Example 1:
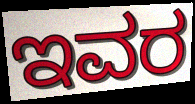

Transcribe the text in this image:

ಇವರ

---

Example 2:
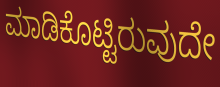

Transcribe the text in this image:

ಮಾಡಿಕೊಟ್ಟಿರುವುದೇ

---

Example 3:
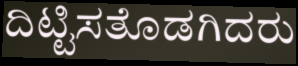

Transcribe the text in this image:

ದಿಟ್ಟಿಸತೊಡಗಿದರು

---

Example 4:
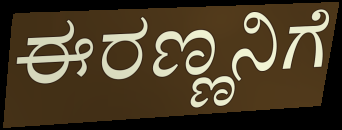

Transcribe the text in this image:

ಈರಣ್ಣನಿಗೆ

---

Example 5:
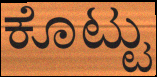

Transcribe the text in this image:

ಕೊಟ್ಟು